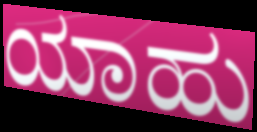
ಯಾಹು